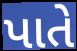
પાતે